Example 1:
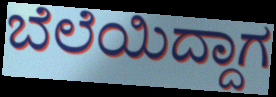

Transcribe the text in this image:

ಬೆಲೆಯಿದ್ದಾಗ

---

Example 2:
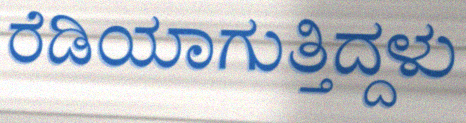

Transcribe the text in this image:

ರೆಡಿಯಾಗುತ್ತಿದ್ದಳು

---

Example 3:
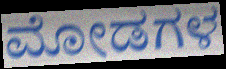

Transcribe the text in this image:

ಮೋಡಗಳ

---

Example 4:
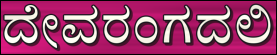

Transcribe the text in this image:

ದೇವರಂಗದಲಿ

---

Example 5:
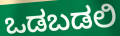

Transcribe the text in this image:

ಒಡಬಡಲಿ